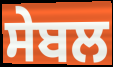
ਸੇਬਲ